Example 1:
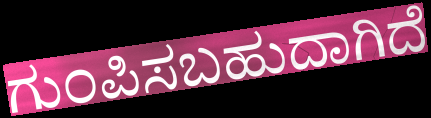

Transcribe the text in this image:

ಗುಂಪಿಸಬಹುದಾಗಿದೆ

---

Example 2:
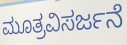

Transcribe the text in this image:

ಮೂತ್ರವಿಸರ್ಜನೆ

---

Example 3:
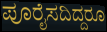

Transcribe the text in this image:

ಪೂರೈಸದಿದ್ದರೂ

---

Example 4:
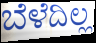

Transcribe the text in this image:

ಬೆಳೆದಿಲ್ಲ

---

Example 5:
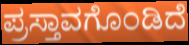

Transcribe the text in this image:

ಪ್ರಸ್ತಾವಗೊಂಡಿದೆ